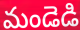
మండెడి